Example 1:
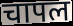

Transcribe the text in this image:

चापल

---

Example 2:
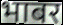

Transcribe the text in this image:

भाबर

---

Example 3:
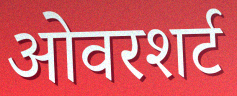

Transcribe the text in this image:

ओवरशर्ट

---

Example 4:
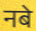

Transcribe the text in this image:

नबे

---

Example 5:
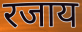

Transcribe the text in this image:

रजाय